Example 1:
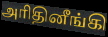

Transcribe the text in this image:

அரிதினீங்கி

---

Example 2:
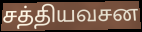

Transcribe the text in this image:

சத்தியவசன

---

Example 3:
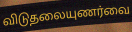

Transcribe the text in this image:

விடுதலையுணர்வை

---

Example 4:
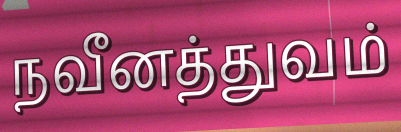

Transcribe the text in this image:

நவீனத்துவம்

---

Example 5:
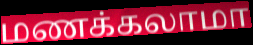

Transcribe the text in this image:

மணக்கலாமா